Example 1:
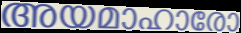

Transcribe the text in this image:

അയമാഹാരോ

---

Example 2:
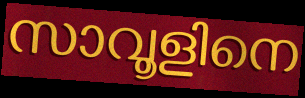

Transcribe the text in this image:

സാവൂളിനെ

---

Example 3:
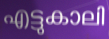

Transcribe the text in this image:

എട്ടുകാലി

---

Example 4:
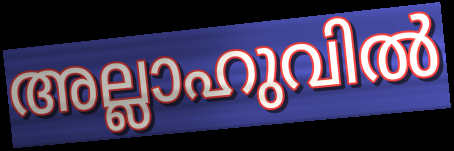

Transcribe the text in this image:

അല്ലാഹുവിൽ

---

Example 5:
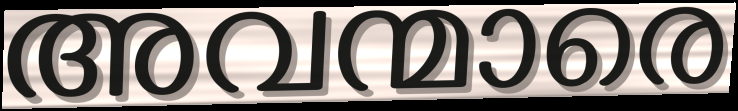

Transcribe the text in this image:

അവന്മാരെ